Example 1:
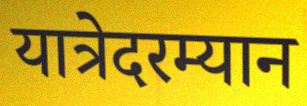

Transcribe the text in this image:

यात्रेदरम्यान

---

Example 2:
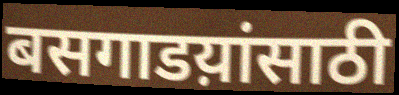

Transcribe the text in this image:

बसगाडय़ांसाठी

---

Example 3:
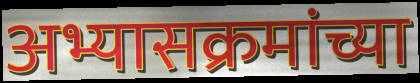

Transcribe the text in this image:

अभ्यासक्रमांच्या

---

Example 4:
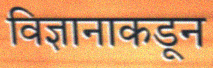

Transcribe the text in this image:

विज्ञानाकडून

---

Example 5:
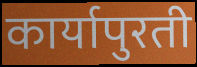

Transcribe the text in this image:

कार्यापुरती